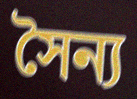
সৈন্য